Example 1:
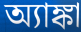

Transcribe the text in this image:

অ্যাঙ্কা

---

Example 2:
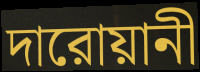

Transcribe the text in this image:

দারোয়ানী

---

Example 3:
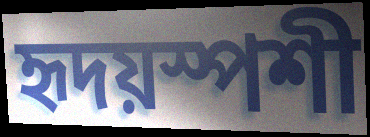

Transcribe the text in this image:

হৃদয়স্পশী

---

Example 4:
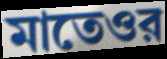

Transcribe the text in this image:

মাতেওর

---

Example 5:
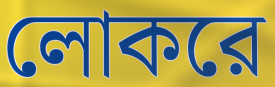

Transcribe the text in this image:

লোকরে